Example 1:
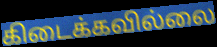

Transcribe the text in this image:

கிடைக்கவில்லை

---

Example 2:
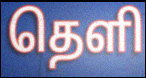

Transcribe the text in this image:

தெளி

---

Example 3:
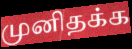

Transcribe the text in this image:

முனிதக்க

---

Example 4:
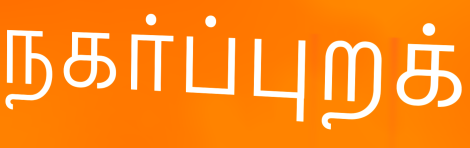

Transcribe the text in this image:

நகர்ப்புறக்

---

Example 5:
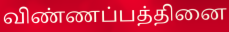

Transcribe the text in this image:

விண்ணப்பத்தினை